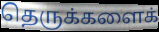
தெருக்களைக்